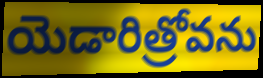
యెడారిత్రోవను